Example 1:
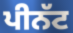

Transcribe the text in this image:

ਪੀਨੱਟ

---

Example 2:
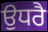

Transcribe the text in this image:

ਉਧਰੈ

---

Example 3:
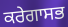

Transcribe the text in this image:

ਕਰੇਗਾਸਭ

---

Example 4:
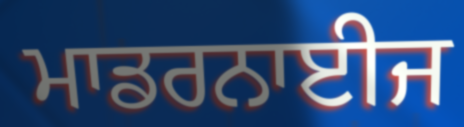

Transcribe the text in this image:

ਮਾਡਰਨਾਈਜ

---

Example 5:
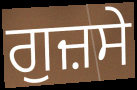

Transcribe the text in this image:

ਗੁਜ਼ਸੇ